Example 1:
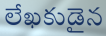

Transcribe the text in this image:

లేఖకుడైన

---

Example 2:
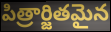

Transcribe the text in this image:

పిత్రార్జితమైన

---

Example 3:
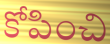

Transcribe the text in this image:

కోపించి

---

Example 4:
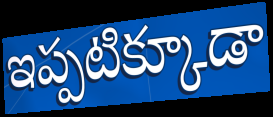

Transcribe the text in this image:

ఇప్పటిక్కూడా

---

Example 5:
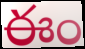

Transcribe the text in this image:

ఈం